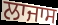
ਲਾਜਾਸ